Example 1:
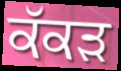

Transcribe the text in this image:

ਕੱਕੜ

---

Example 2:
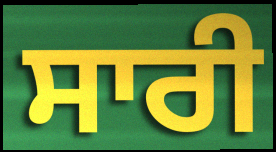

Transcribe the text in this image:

ਸਾਰੀ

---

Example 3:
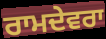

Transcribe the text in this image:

ਰਾਮਦੇਵਰਾ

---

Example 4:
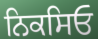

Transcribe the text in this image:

ਨਿਕਸਿਓ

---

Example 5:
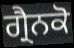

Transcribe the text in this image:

ਗ੍ਰੈਨਕੋ